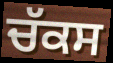
ਚੱਕਸ